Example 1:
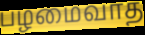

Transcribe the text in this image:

பழமைவாத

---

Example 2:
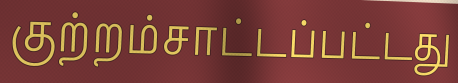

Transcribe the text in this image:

குற்றம்சாட்டப்பட்டது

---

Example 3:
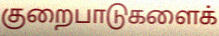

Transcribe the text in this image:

குறைபாடுகளைக்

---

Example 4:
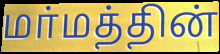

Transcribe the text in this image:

மர்மத்தின்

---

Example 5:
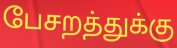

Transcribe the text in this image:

பேசறத்துக்கு